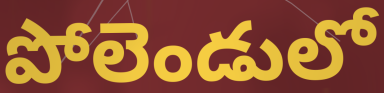
పోలెండులో